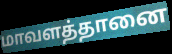
மாவளத்தானை